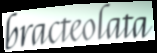
bracteolata